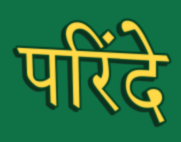
परिंदे